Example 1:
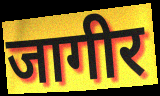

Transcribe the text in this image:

जागीर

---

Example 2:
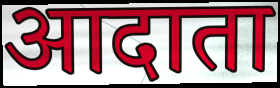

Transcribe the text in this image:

आदाता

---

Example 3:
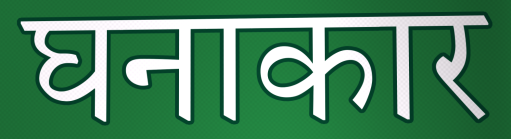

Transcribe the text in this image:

घनाकार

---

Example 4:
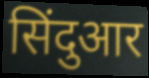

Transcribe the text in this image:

सिंदुआर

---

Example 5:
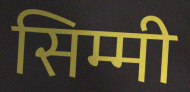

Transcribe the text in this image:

सिम्मी